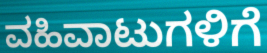
ವಹಿವಾಟುಗಳಿಗೆ